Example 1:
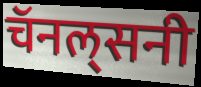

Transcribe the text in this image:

चॅनल्सनी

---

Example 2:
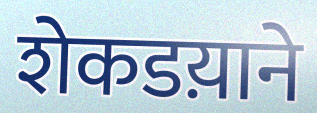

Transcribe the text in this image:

शेकडय़ाने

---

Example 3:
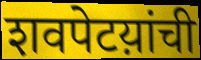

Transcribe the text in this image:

शवपेटय़ांची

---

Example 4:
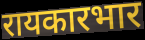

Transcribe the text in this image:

रायकारभार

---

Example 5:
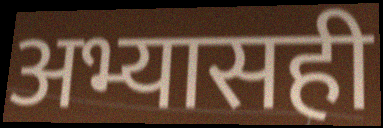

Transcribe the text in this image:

अभ्यासही